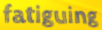
fatiguing